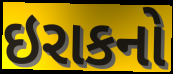
ઇરાકનો